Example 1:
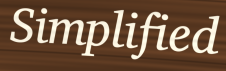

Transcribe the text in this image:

Simplified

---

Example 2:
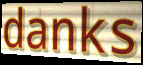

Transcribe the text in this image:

danks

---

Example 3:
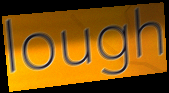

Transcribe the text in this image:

lough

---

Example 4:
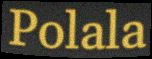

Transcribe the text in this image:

Polala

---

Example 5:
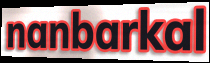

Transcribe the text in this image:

nanbarkal